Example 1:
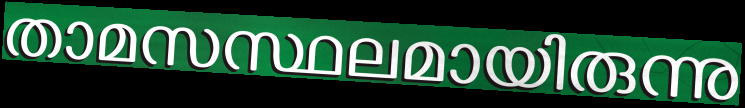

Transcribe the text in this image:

താമസസ്ഥലമായിരുന്നു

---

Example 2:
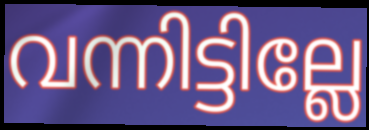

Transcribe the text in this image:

വന്നിട്ടില്ലേ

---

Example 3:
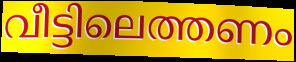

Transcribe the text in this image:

വീട്ടിലെത്തണം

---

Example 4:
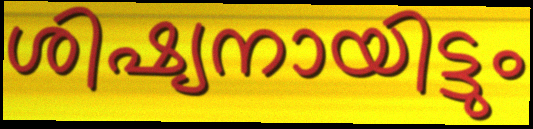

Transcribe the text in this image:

ശിഷ്യനായിട്ടും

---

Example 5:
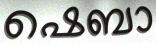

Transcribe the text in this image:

ഷെബാ